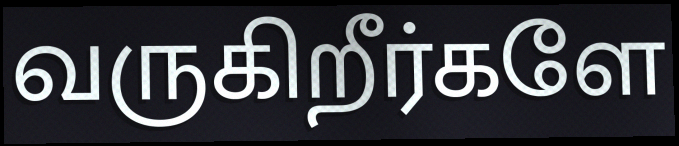
வருகிறீர்களே